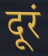
दूरं